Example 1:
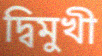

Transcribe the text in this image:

দ্বিমুখী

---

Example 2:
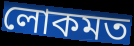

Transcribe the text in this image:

লোকমত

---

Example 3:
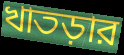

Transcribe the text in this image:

খাতড়ার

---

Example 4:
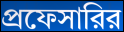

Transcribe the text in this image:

প্রফেসারির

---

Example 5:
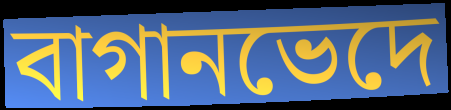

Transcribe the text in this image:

বাগানভেদে